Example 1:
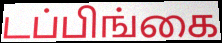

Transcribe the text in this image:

டப்பிங்கை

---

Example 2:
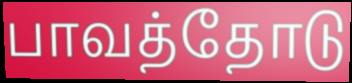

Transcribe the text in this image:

பாவத்தோடு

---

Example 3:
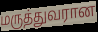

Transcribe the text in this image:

மருத்துவரான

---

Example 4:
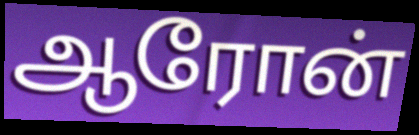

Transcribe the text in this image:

ஆரோன்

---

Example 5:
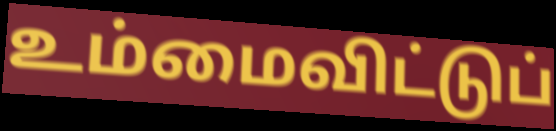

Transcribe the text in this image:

உம்மைவிட்டுப்